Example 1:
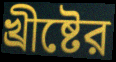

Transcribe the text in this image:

খ্রীষ্টের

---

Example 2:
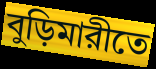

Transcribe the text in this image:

বুড়িমারীতে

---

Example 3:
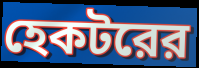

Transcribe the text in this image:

হেকটরের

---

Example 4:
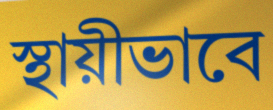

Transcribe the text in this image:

স্থায়ীভাবে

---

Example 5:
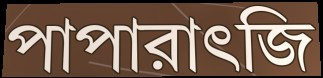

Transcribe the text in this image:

পাপারাৎজি